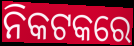
ନିକଟକରେ